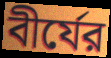
বীর্যের